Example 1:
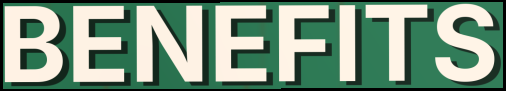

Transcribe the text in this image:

BENEFITS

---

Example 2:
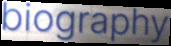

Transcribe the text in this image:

biography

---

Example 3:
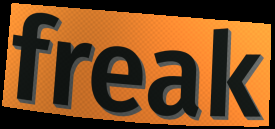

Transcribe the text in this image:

freak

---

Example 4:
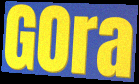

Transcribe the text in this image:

GOra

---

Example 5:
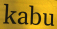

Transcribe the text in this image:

kabu